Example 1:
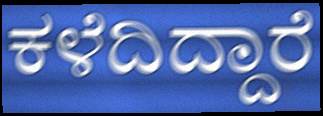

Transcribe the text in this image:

ಕಳೆದಿದ್ದಾರೆ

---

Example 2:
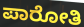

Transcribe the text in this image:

ಪಾರೋತಿ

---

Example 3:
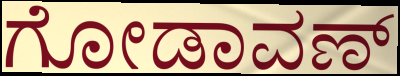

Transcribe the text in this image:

ಗೋಡಾವಣ್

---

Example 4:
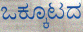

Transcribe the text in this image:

ಒಕ್ಕೂಟದ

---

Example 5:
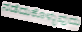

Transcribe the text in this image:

ನಡೆದುಕೊಳ್ಳುವುದು